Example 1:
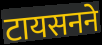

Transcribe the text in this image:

टायसनने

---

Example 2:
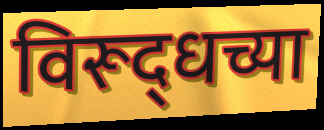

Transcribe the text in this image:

विरूद्धच्या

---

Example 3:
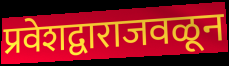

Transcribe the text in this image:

प्रवेशद्वाराजवळून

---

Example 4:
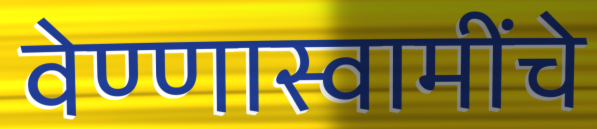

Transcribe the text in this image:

वेण्णास्वामींचे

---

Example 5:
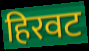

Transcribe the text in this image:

हिरवट